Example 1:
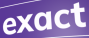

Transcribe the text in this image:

exact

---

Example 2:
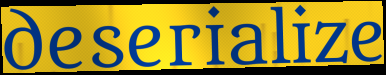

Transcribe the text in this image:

deserialize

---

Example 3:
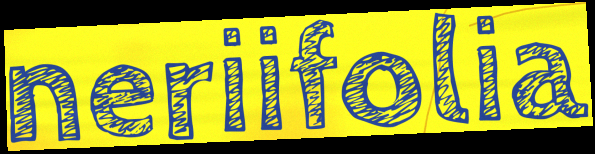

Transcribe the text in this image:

neriifolia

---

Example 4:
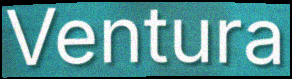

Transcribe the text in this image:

Ventura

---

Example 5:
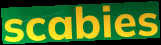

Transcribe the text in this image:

scabies